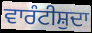
ਵਾਰੰਟੀਸ਼ੁਦਾ